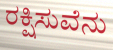
ರಕ್ಷಿಸುವೆನು